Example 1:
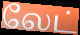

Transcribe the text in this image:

லேட்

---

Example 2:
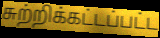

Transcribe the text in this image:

சுற்றிக்கட்டப்பட்ட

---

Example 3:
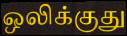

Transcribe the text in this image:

ஒலிக்குது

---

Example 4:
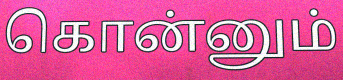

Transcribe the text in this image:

கொன்னும்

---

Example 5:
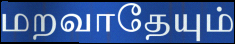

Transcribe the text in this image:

மறவாதேயும்